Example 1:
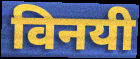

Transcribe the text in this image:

विनयी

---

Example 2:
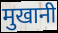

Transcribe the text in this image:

मुखानी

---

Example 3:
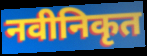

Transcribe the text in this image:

नवीनिकृत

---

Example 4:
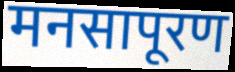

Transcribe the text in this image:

मनसापूरण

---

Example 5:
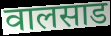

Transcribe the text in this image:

वालसाड